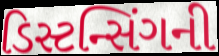
ડિસ્ટન્સિંગની